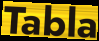
Tabla